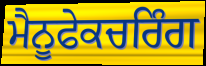
ਮੈਨੂਫੇਕਚਰਿੰਗ